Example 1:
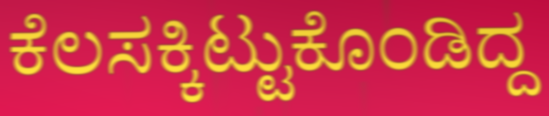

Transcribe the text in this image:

ಕೆಲಸಕ್ಕಿಟ್ಟುಕೊಂಡಿದ್ದ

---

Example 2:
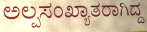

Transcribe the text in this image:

ಅಲ್ಪಸಂಖ್ಯಾತರಾಗಿದ್ದ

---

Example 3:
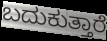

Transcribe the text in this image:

ಬದುಕುತ್ತಾರೆ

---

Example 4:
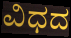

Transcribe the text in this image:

ವಿಧದ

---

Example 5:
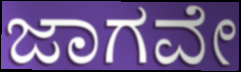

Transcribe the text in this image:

ಜಾಗವೇ